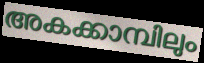
അകക്കാമ്പിലും